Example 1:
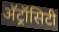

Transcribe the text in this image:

ॲट्रॉसिटी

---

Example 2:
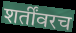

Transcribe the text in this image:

शर्तींवरच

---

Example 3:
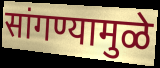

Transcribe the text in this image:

सांगण्यामुळे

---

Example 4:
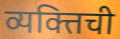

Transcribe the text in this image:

व्यक्तिची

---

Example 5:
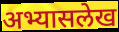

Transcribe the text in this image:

अभ्यासलेख